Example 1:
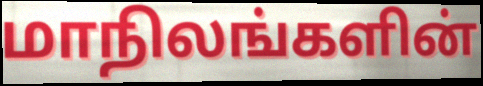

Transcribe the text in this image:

மாநிலங்களின்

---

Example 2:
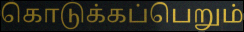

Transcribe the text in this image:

கொடுக்கப்பெறும்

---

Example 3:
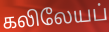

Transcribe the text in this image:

கலிலேயப்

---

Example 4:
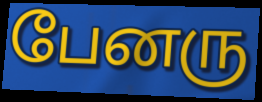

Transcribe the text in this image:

பேனரு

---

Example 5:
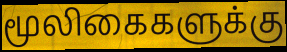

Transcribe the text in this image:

மூலிகைகளுக்கு